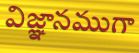
విజ్ఞానముగా